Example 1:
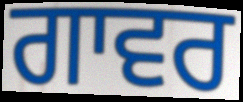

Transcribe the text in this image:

ਗਾਵਰ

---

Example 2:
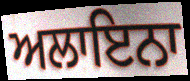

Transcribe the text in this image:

ਅਲਾਇਨਾ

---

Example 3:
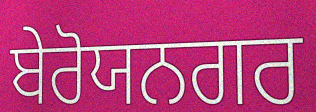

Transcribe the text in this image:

ਬੇਰੋਯਨਗਰ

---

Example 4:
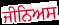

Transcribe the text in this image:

ਜੀਨਿਅਸ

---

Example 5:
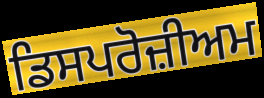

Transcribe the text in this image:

ਡਿਸਪਰੋਜ਼ੀਅਮ